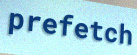
prefetch